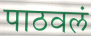
पाठवलं